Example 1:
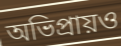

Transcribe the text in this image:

অভিপ্রায়ও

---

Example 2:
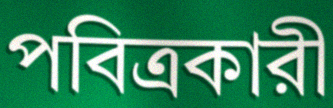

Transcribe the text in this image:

পবিত্রকারী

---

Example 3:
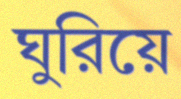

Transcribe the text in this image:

ঘুরিয়ে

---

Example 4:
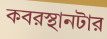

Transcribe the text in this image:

কবরস্থানটার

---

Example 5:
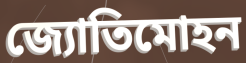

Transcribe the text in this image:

জ্যোতিমোহন